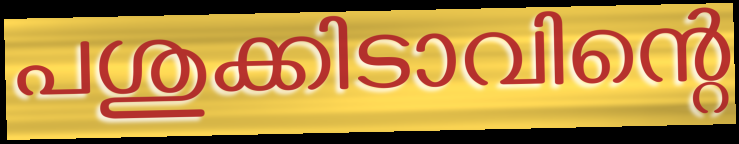
പശുക്കിടാവിന്റെ